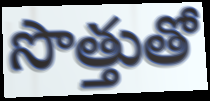
సొత్తుతో